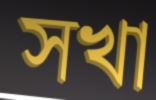
সখা